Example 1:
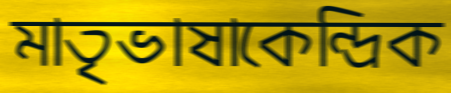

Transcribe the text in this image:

মাতৃভাষাকেন্দ্রিক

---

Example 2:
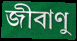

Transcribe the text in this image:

জীবাণু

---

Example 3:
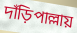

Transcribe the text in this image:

দাঁড়িপাল্লায়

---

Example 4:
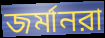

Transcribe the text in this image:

জর্মানরা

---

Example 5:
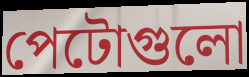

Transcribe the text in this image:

পেটোগুলো